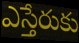
ఎస్తేరుకు